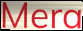
Mera